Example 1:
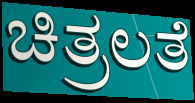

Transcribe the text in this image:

ಚಿತ್ರಲತೆ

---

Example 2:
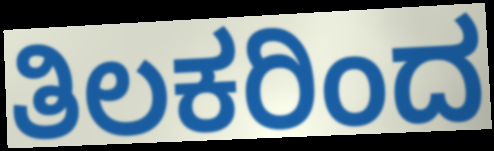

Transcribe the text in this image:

ತಿಲಕರಿಂದ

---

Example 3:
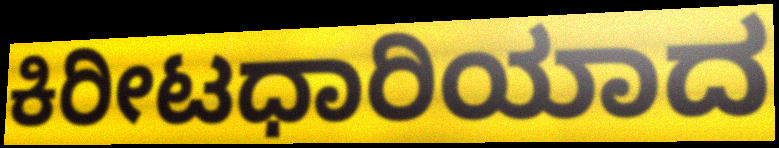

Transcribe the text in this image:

ಕಿರೀಟಧಾರಿಯಾದ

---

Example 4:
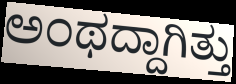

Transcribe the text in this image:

ಅಂಥದ್ದಾಗಿತ್ತು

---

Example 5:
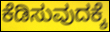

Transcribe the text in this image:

ಕೆಡಿಸುವುದಕ್ಕೆ